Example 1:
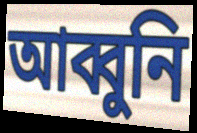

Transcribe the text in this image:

আব্বুনি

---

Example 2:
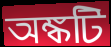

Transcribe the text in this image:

অঙ্কটি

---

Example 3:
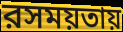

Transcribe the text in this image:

রসময়তায়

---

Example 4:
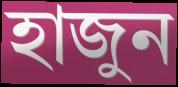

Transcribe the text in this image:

হাজুন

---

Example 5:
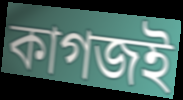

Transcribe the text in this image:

কাগজই